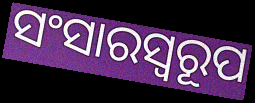
ସଂସାରସ୍ବରୂପ